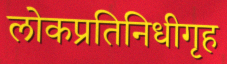
लोकप्रतिनिधीगृह